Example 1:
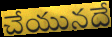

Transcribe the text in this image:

చేయునదే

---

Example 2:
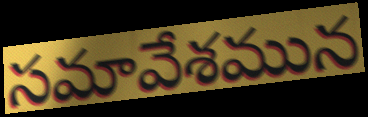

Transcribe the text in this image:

సమావేశమున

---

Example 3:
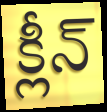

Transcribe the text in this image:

క్లీన్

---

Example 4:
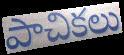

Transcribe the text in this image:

పాచికలు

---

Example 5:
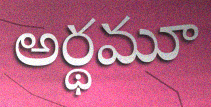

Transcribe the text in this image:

అర్థమూ